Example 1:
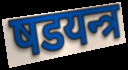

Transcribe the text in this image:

षडयन्त्र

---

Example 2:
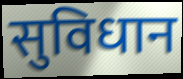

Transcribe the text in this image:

सुविधान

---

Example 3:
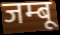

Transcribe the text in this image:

जम्बू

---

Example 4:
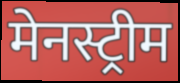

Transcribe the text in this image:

मेनस्ट्रीम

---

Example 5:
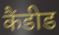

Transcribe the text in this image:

कैंडीड